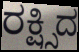
ರಕ್ಷ್ಸಿದ